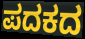
ಪದಕದ